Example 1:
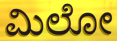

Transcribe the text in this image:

ಮಿಲೋ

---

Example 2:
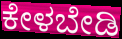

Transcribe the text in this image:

ಕೇಳಬೇಡಿ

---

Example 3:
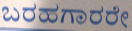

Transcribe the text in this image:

ಬರಹಗಾರರೇ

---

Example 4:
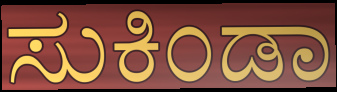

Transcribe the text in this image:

ಸುಕಿಂಡಾ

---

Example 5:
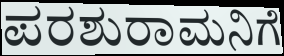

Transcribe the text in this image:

ಪರಶುರಾಮನಿಗೆ